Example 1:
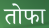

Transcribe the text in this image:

तोफा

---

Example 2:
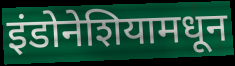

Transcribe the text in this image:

इंडोनेशियामधून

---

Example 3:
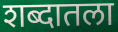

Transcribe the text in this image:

शब्दातला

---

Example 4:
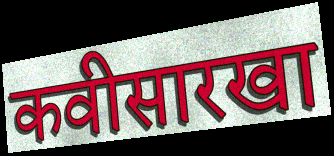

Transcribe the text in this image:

कवीसारखा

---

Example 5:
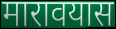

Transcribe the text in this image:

मारावयास